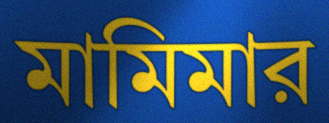
মামিমার